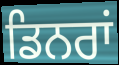
ਡਿਨਰਾਂ